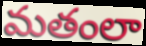
మతంలా